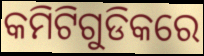
କମିଟିଗୁଡିକରେ